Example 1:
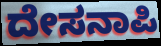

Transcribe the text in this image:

ದೇಸನಾಪಿ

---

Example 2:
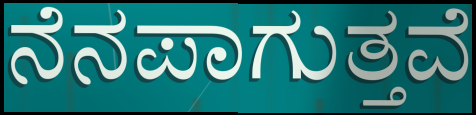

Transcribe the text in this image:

ನೆನಪಾಗುತ್ತವೆ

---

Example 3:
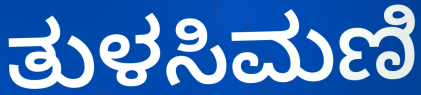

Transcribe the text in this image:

ತುಳಸಿಮಣಿ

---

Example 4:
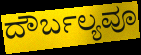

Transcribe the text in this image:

ದೌರ್ಬಲ್ಯವೂ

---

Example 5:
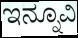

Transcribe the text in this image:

ಇನ್ನೂವಿ